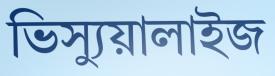
ভিস্যুয়ালাইজ